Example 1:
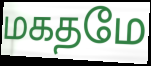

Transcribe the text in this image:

மகதமே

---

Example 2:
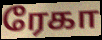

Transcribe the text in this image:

ரேகா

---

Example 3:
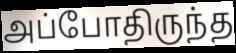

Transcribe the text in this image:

அப்போதிருந்த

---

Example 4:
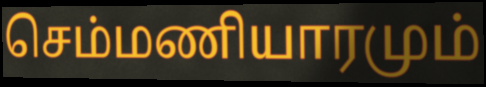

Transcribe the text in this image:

செம்மணியாரமும்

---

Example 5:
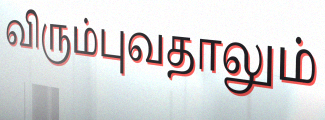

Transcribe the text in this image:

விரும்புவதாலும்